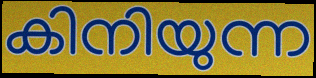
കിനിയുന്ന